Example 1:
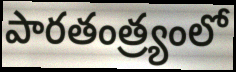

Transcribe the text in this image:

పారతంత్ర్యంలో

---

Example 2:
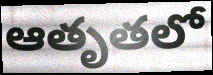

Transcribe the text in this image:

ఆతృతలో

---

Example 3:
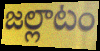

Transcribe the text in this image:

జల్లాటం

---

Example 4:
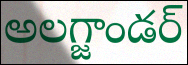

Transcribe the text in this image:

అలగ్జాండర్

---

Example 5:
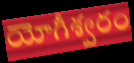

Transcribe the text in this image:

యోగీశ్వరం